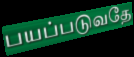
பயப்படுவதே